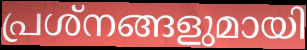
പ്രശ്നങ്ങളുമായി